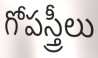
గోపస్త్రీలు